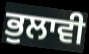
ਭੁਲਾਵੀ